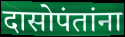
दासोपंतांना